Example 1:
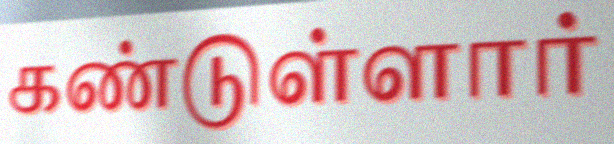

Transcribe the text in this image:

கண்டுள்ளார்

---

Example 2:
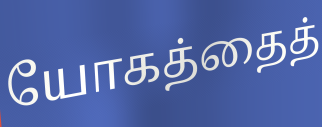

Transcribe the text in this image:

யோகத்தைத்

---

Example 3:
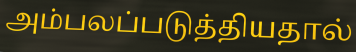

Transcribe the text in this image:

அம்பலப்படுத்தியதால்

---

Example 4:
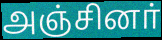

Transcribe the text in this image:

அஞ்சினர்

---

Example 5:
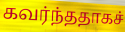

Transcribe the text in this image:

கவர்ந்ததாகச்